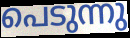
പെടുന്നു